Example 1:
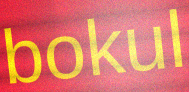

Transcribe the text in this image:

bokul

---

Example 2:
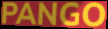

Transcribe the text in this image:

PANGO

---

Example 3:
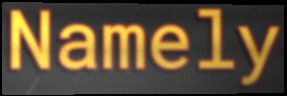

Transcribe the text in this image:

Namely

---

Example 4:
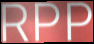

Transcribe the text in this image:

RPP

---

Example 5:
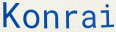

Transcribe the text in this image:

Konrai